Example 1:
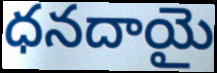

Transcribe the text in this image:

ధనదాయై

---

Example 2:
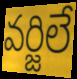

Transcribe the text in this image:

వర్జిలే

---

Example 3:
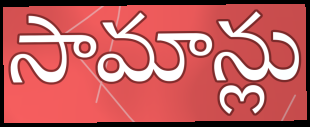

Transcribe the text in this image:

సామాన్లు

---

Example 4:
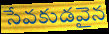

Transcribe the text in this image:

సేవకుడవైన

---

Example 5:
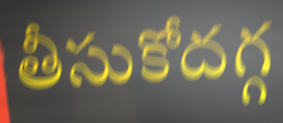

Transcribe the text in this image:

తీసుకోదగ్గ